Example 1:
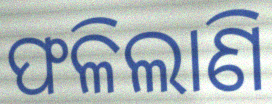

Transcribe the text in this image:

ଫଳିଲାଣି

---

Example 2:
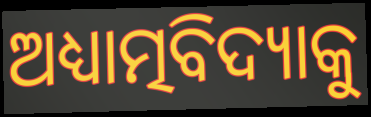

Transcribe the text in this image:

ଅଧ୍ୟାତ୍ମବିଦ୍ୟାକୁ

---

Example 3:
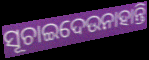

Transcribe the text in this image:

ସୂଚାଇଦେଉନାହାନ୍ତି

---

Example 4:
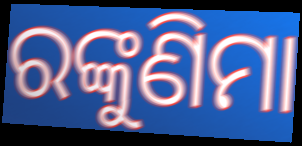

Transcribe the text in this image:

ରଙ୍କୁଣିମା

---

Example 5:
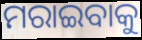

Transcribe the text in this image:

ମରାଇବାକୁ